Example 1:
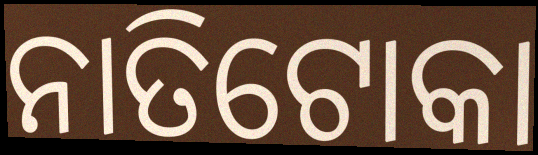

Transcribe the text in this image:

ନାତିଟୋକା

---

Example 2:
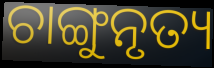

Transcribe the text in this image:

ଚାଙ୍ଗୁନୃତ୍ୟ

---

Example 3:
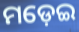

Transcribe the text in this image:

ମଡ଼େଇ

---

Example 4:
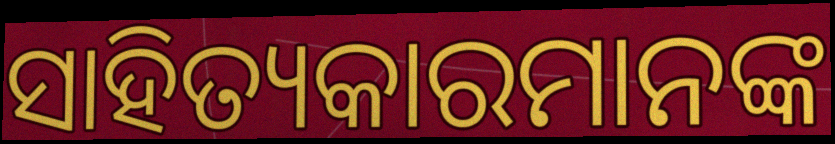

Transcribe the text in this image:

ସାହିତ୍ୟକାରମାନଙ୍କ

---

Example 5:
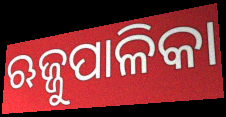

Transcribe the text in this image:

ଋଜ୍ଜୁପାଳିକା